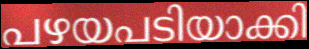
പഴയപടിയാക്കി